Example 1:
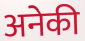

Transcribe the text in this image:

अनेकी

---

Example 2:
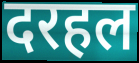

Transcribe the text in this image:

दरहल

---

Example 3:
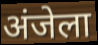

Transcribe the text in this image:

अंजेला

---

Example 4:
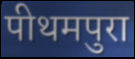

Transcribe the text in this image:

पीथमपुरा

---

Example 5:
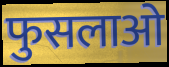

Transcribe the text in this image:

फुसलाओ